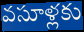
వసూళ్లకు